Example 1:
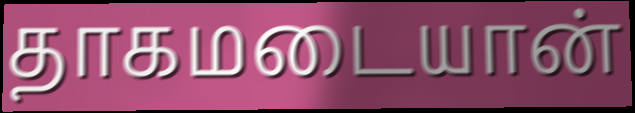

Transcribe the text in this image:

தாகமடையான்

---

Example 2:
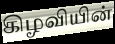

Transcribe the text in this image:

கிழவியின்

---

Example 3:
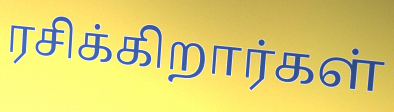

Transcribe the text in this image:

ரசிக்கிறார்கள்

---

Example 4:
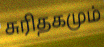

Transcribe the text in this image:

சுரிதகமும்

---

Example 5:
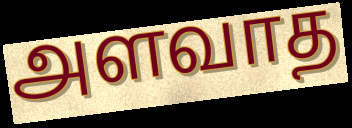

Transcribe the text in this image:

அளவாத